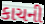
કાચની